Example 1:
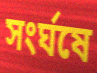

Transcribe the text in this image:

সংর্ঘষে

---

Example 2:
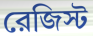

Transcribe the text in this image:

রেজিস্ট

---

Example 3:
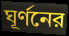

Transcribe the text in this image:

ঘূর্ণনের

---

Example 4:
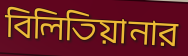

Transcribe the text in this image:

বিলিতিয়ানার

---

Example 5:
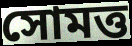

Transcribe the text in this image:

সোমত্ত